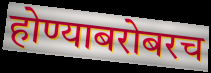
होण्याबरोबरच